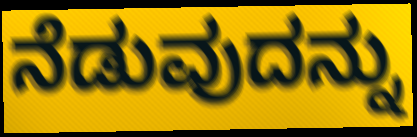
ನೆಡುವುದನ್ನು